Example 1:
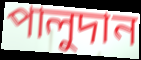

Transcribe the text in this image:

পালুদান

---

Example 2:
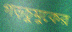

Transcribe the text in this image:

গড়চুমুকের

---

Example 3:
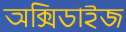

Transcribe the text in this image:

অক্সিডাইজ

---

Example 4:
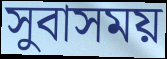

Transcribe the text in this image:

সুবাসময়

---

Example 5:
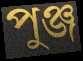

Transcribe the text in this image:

পুঞ্জ